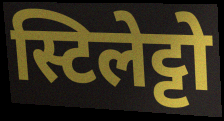
स्टिलेट्टो